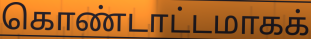
கொண்டாட்டமாகக்